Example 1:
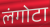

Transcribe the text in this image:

लंगोटा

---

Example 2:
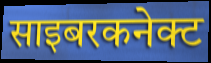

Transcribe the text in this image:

साइबरकनेक्ट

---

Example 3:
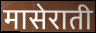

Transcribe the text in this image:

मासेराती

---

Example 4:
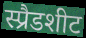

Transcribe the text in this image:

स्प्रैडशीट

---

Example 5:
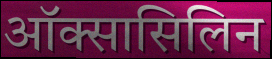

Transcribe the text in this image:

ऑक्सासिलिन